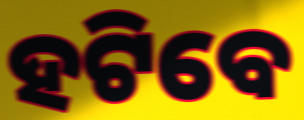
ହଟିବେ